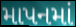
માપનમાં